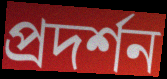
প্রদর্শন